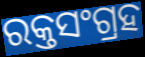
ରକ୍ତସଂଗ୍ରହ